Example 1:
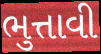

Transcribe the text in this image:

ભુત્તાવી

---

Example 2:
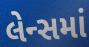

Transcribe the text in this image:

લેન્સમાં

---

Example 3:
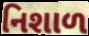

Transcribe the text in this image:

નિશાળ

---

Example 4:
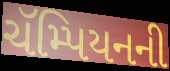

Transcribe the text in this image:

ચૅમ્પિયનની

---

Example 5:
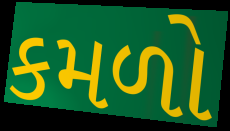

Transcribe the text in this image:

કમળો